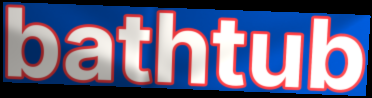
bathtub